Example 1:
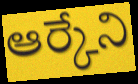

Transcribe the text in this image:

ఆర్కేని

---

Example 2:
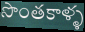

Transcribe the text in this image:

సొంతకాళ్ళ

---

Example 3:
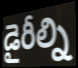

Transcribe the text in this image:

డైరీల్ని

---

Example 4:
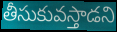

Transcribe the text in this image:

తీసుకువస్తాడని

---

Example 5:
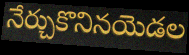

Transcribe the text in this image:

నేర్చుకొనినయెడల